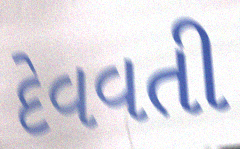
દેવવતી